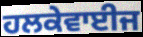
ਹਲਕੇਵਾਈਜ